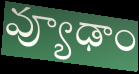
వ్యూఢాం